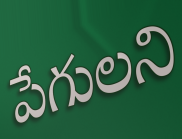
పేగులని